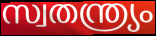
സ്വതന്ത്ര്യം